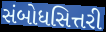
સંબોધસિત્તરી